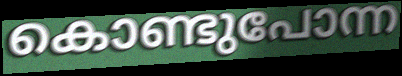
കൊണ്ടുപോന്ന